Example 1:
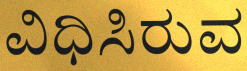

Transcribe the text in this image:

ವಿಧಿಸಿರುವ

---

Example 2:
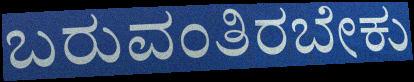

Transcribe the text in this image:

ಬರುವಂತಿರಬೇಕು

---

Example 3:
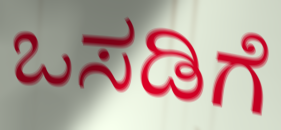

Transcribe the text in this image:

ಒಸಡಿಗೆ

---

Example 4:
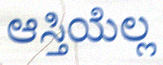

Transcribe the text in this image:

ಆಸ್ತಿಯೆಲ್ಲ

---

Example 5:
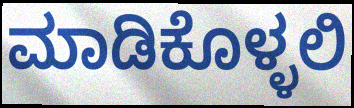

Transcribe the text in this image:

ಮಾಡಿಕೊಳ್ಳಲಿ